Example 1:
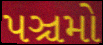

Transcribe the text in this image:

પઞ્ચમો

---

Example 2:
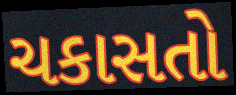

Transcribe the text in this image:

ચકાસતો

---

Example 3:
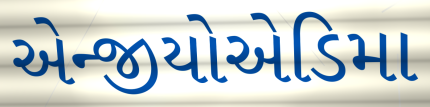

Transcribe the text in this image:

એન્જીયોએડિમા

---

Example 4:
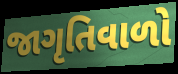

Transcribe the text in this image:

જાગૃતિવાળો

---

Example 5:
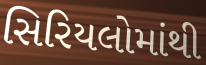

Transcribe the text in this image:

સિરિયલોમાંથી